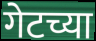
गेटच्या